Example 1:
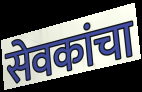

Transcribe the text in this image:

सेवकांचा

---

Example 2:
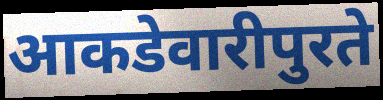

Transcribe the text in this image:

आकडेवारीपुरते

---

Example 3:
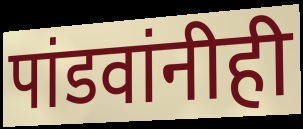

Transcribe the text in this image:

पांडवांनीही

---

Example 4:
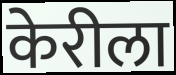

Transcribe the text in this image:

केरीला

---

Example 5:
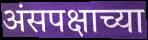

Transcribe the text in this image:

अंसपक्षाच्या